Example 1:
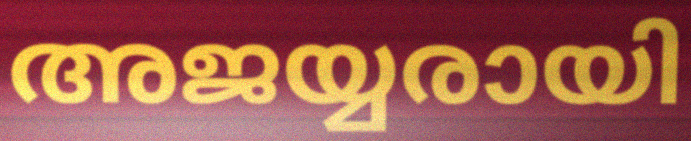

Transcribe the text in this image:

അജയ്യരായി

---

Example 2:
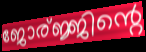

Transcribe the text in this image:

ജോര്ജ്ജിന്റെ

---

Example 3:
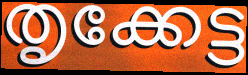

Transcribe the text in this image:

തൃക്കേട്ട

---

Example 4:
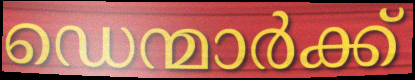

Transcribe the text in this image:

ഡെന്മാർക്ക്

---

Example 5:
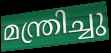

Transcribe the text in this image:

മന്ത്രിച്ചു